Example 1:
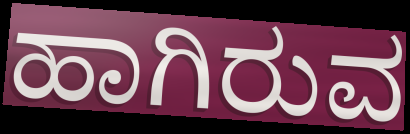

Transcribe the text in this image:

ಹಾಗಿರುವ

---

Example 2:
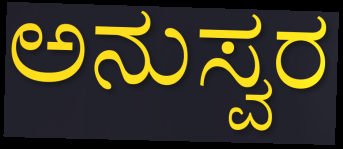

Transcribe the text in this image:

ಅನುಸ್ವರ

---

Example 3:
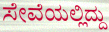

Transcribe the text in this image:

ಸೇವೆಯಲ್ಲಿದ್ದು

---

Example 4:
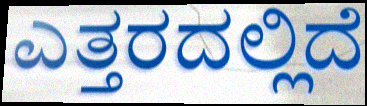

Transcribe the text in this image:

ಎತ್ತರದಲ್ಲಿದೆ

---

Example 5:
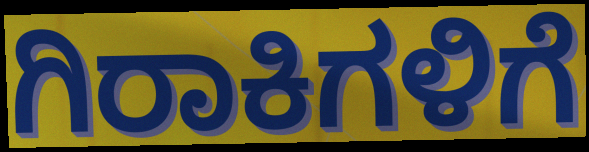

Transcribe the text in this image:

ಗಿರಾಕಿಗಳಿಗೆ